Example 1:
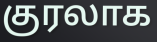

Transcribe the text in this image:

குரலாக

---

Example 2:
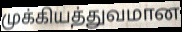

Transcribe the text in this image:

முக்கியத்துவமான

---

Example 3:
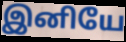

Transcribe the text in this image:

இனியே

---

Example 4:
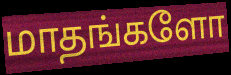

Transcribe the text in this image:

மாதங்களோ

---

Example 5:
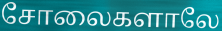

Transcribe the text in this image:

சோலைகளாலே